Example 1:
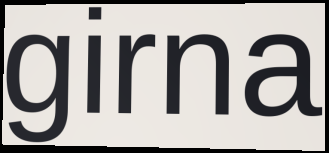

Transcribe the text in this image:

girna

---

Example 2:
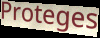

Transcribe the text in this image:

Proteges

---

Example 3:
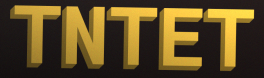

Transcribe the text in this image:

TNTET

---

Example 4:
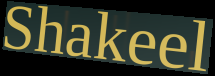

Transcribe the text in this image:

Shakeel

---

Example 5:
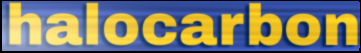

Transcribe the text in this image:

halocarbon